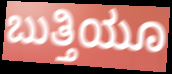
ಬುತ್ತಿಯೂ